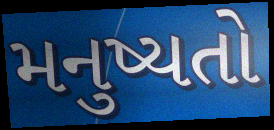
મનુષ્યતો